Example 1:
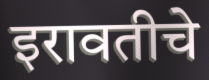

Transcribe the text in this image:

इरावतीचे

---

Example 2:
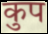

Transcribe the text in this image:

कुप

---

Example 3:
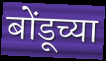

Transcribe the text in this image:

बोंडूच्या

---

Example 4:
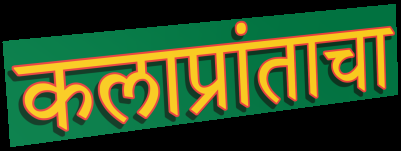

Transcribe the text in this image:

कलाप्रांताचा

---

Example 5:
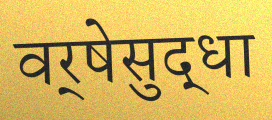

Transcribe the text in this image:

वर्षेसुद्धा